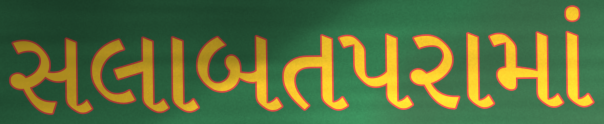
સલાબતપરામાં